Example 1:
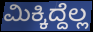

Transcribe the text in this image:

ಮಿಕ್ಕಿದ್ದೆಲ್ಲ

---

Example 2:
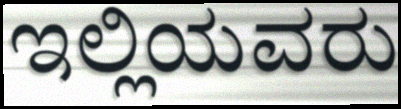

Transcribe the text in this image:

ಇಲ್ಲಿಯವರು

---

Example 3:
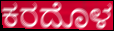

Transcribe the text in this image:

ಕರದೊಳ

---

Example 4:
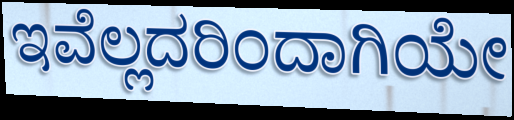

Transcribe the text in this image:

ಇವೆಲ್ಲದರಿಂದಾಗಿಯೇ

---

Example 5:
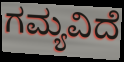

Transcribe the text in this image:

ಗಮ್ಯವಿದೆ